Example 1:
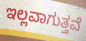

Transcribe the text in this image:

ಇಲ್ಲವಾಗುತ್ತವೆ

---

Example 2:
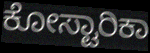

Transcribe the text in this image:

ಕೋಸ್ಟಾರಿಕಾ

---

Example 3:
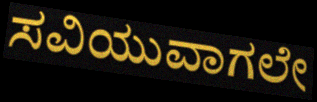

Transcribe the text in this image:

ಸವಿಯುವಾಗಲೇ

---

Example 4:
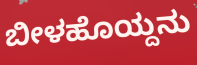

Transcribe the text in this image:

ಬೀಳಹೊಯ್ದನು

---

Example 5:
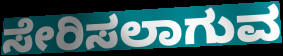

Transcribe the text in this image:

ಸೇರಿಸಲಾಗುವ